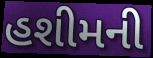
હશીમની